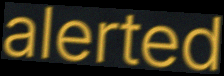
alerted